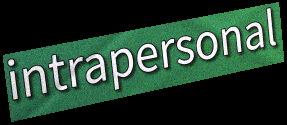
intrapersonal